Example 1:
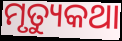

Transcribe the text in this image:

ମୃତ୍ୟୁକଥା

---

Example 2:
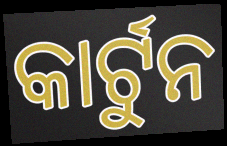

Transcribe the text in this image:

କାର୍ଟୁନ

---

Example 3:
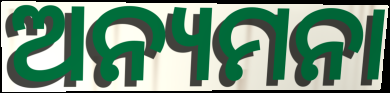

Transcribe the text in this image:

ଅନ୍ୟମନା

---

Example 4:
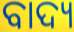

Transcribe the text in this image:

ବାଦ୍ଯ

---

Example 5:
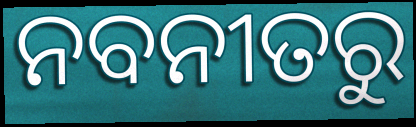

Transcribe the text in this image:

ନବନୀତରୁ